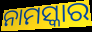
ନାମସ୍କାର